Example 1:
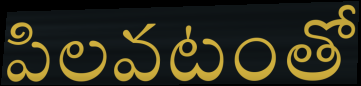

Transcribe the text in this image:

పిలవటంతో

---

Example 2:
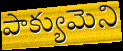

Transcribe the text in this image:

పాక్యుమెని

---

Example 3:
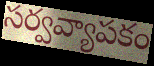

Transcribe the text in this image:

సర్వవ్యాపకం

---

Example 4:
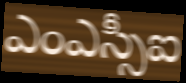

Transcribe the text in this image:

ఎంఎస్సీఐ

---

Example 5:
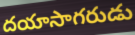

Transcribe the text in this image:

దయాసాగరుడు